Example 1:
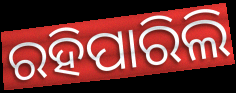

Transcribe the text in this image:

ରହିପାରିଲି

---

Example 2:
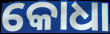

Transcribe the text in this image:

କୋଧା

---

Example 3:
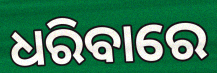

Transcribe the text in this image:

ଧରିବାରେ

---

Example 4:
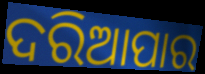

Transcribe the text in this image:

ଦରିଆପାର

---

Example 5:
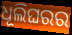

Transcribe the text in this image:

ଧୂଲିଘରର